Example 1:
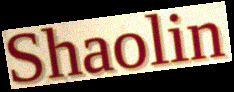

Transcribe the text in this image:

Shaolin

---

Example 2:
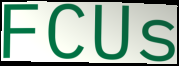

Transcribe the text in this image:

FCUs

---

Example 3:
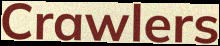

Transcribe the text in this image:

Crawlers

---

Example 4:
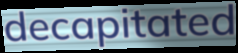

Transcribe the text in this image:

decapitated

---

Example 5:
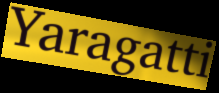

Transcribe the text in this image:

Yaragatti